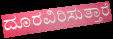
ದೂರವಿರಿಸುತ್ತಾರೆ